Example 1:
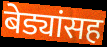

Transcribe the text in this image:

बेड्यांसह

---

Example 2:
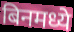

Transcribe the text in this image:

बिनमध्ये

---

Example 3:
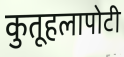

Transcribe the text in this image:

कुतूहलापोटी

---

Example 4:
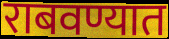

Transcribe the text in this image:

राबवण्यात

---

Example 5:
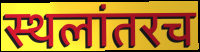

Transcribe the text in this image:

स्थलांतरच